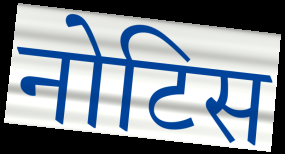
नोटिस